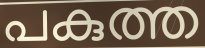
പകുത്ത